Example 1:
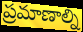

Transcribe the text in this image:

ప్రమాణాల్ని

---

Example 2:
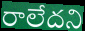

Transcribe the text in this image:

రాలేదని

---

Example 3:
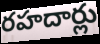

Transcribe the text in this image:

రహదార్లు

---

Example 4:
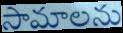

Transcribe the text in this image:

సామాలను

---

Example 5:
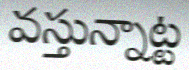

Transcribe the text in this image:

వస్తున్నాట్ట